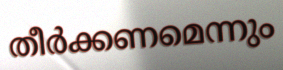
തീർക്കണമെന്നും